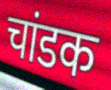
चांडक